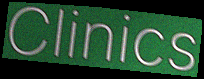
Clinics